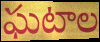
ఘటాల